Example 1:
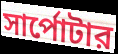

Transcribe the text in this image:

সার্পোটার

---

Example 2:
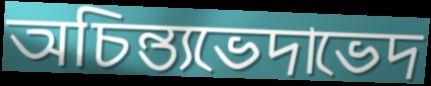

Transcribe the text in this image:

অচিন্ত্যভেদাভেদ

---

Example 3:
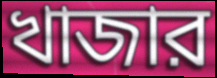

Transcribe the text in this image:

খাজার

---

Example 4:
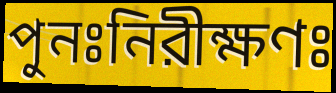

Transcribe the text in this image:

পুনঃনিরীক্ষণঃ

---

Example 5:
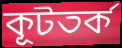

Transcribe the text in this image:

কূটতর্ক